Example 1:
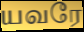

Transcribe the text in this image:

யவரே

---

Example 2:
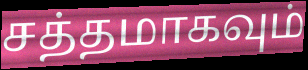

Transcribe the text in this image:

சத்தமாகவும்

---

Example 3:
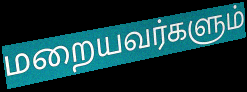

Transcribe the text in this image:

மறையவர்களும்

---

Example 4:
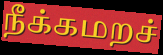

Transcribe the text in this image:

நீக்கமறச்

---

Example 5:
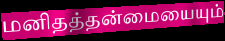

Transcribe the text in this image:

மனிதத்தன்மையையும்